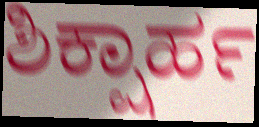
ಶಿಕ್ಷಾರ್ಹ